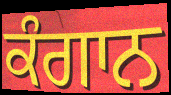
ਕੰਗਾਨ